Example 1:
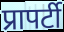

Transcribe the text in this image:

प्रापर्टी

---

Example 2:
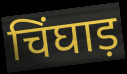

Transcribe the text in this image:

चिंघाड़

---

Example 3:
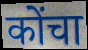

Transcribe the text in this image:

कोंचा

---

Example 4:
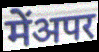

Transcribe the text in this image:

मेंअपर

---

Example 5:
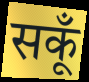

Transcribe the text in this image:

सकूँ